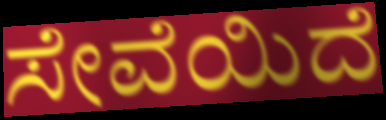
ಸೇವೆಯಿದೆ